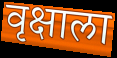
वृक्षाला